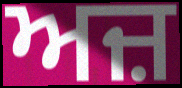
ਅਜ਼